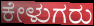
ಕೇಳುಗರು